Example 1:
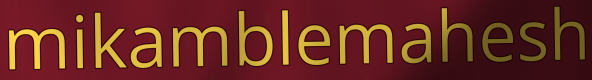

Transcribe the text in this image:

mikamblemahesh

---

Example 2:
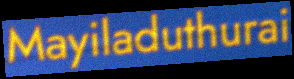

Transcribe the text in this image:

Mayiladuthurai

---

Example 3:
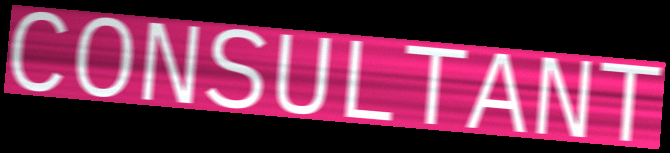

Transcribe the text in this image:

CONSULTANT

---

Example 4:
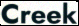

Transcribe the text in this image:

Creek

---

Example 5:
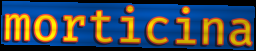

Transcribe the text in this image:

morticina